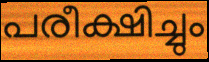
പരീക്ഷിച്ചും